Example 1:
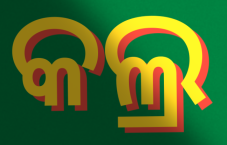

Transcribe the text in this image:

କଲ୍ର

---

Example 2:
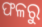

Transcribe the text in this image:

ଫଳରୁ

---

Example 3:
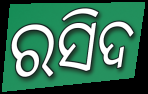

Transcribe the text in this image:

ରସିଦ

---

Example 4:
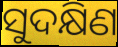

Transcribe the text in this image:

ସୁଦକ୍ଷିଣ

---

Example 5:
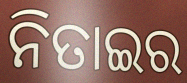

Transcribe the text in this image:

ନିତାଇର